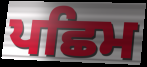
ਪਛਿਮ